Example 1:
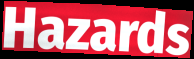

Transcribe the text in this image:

Hazards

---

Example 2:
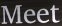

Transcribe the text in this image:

Meet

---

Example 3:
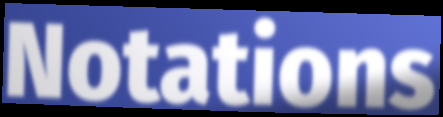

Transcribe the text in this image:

Notations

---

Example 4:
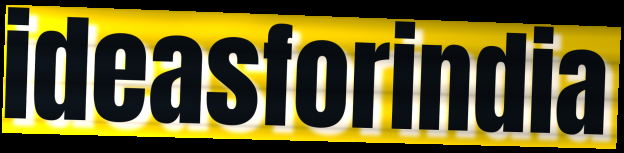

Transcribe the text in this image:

ideasforindia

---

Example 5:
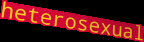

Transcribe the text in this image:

heterosexual